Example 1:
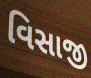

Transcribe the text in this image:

વિસાજી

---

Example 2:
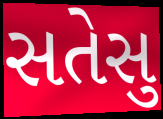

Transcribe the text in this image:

સતેસુ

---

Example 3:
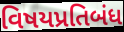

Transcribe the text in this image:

વિષયપ્રતિબંધ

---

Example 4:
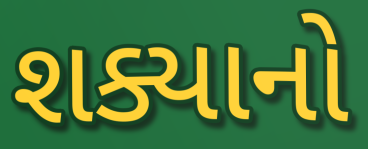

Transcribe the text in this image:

શક્યાનો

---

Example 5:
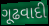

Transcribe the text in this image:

ગૂઢવાદી